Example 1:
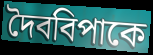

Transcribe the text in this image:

দৈববিপাকে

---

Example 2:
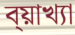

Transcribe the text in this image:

ব্য়াখ্যা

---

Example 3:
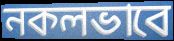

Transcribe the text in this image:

নকলভাবে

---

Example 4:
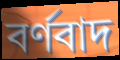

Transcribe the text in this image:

বর্ণবাদ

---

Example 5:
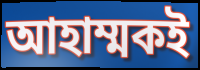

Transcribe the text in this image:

আহাম্মকই